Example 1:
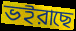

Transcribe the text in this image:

ভইরাছে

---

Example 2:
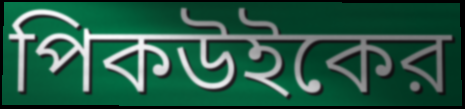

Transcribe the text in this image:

পিকউইকের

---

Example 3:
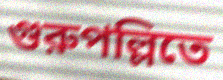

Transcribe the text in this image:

গুরুপল্লিতে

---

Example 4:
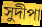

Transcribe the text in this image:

সুদীপা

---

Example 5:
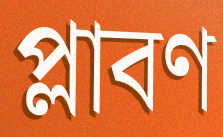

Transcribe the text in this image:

প্লাবণ